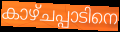
കാഴ്ചപ്പാടിനെ